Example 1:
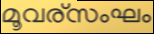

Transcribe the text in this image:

മൂവര്സംഘം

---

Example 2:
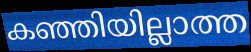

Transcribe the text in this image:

കഞ്ഞിയില്ലാത്ത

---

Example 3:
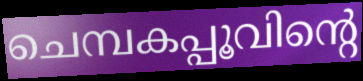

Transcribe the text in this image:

ചെമ്പകപ്പൂവിന്റെ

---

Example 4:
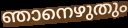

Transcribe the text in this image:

ഞാനെഴുതും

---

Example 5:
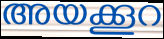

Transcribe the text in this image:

അയക്കൂറ